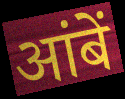
आंबें